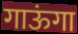
गाऊंगा